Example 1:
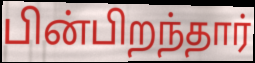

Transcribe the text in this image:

பின்பிறந்தார்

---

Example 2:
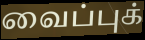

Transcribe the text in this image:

வைப்புக்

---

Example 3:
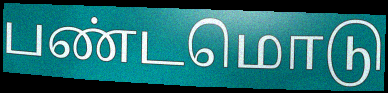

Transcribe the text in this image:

பண்டமொடு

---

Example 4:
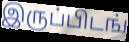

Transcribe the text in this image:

இருப்பிடங்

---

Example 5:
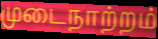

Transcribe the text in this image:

முடைநாற்றம்